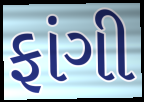
ફાંગી